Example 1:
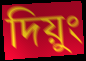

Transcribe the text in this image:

দিয়ুং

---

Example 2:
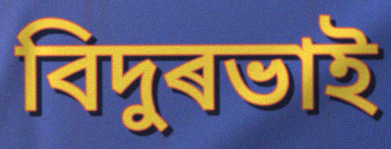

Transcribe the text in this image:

বিদুৰভাই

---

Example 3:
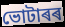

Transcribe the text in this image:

ভোটাৰৰ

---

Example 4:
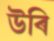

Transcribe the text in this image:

উৰি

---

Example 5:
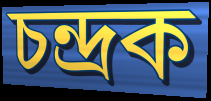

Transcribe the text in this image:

চন্দ্ৰক